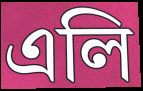
এলি